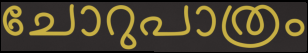
ചോറുപാത്രം